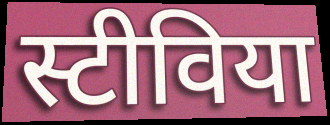
स्टीविया